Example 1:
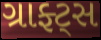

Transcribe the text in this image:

ગ્રાફ્ટ્સ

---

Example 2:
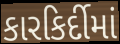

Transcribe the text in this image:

કારકિર્દીમાં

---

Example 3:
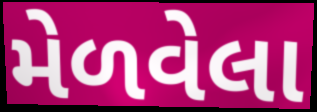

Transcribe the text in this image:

મેળવેલા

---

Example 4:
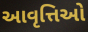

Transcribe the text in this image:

આવૃત્તિઓ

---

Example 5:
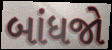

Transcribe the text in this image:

બાંધજો